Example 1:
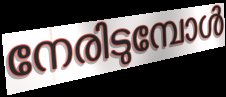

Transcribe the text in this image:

നേരിടുമ്പോൾ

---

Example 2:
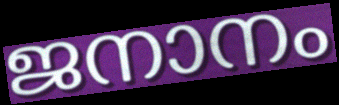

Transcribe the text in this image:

ജനാനം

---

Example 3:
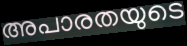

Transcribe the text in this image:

അപാരതയുടെ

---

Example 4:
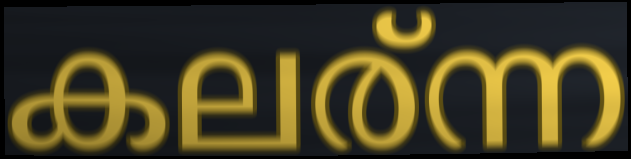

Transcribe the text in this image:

കലര്ന്ന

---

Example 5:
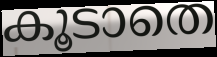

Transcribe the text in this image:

കൂടാതെ